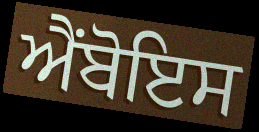
ਐਂਬੋਇਸ